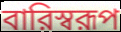
বারিস্বরূপ